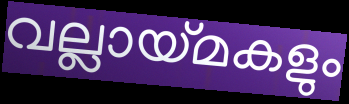
വല്ലായ്മകളും